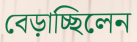
বেড়াচ্ছিলেন